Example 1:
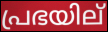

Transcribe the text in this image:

പ്രഭയില്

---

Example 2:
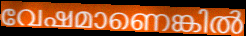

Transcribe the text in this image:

വേഷമാണെങ്കിൽ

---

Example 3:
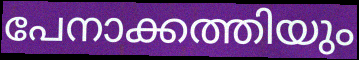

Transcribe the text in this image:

പേനാക്കത്തിയും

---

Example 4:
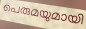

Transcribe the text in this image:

പെരുമയുമായി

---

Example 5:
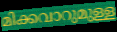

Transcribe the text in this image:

മിക്കവാറുമുള്ള